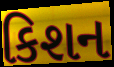
કિશન